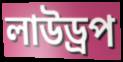
লাউড্রপ